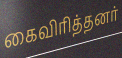
கைவிரித்தனர்